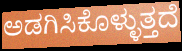
ಅಡಗಿಸಿಕೊಳ್ಳುತ್ತದೆ